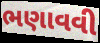
ભણાવવી